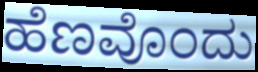
ಹೆಣವೊಂದು